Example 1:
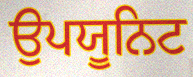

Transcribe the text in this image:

ਉਪਯੂਨਿਟ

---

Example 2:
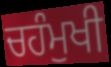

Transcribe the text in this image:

ਚਹੰਮੁਖੀ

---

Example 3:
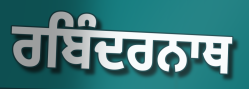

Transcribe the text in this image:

ਰਬਿੰਦਰਨਾਥ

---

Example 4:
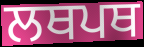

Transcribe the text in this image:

ਲਥਪਥ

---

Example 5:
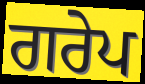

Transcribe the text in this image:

ਗਰੇਪ